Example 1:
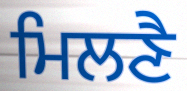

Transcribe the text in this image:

ਮਿਲਣੈ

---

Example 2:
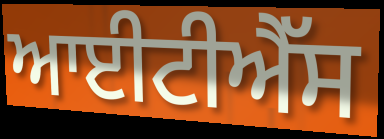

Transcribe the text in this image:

ਆਈਟੀਐੱਸ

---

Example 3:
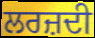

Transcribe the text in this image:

ਲਰਜ਼ਦੀ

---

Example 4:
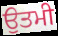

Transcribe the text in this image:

ਉਤਮੀ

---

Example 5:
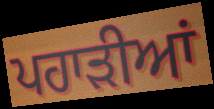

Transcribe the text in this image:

ਪਹਾਡ਼ੀਆਂ